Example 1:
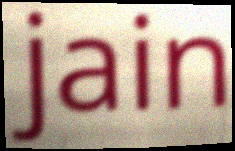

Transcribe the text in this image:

jain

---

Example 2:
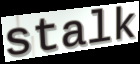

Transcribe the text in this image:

stalk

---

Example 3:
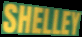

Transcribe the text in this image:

SHELLEY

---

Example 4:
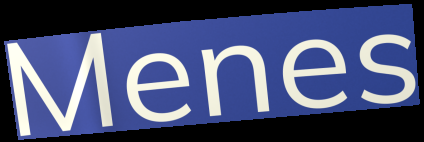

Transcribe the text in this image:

Menes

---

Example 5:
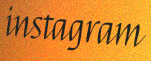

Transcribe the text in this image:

instagram